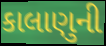
કાલાણુની